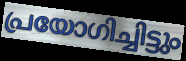
പ്രയോഗിച്ചിട്ടും